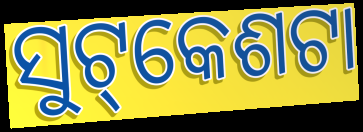
ସୁଟ୍‌କେଶଟା